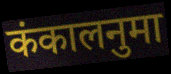
कंकालनुमा